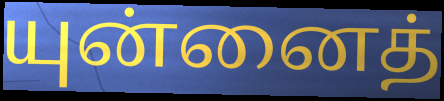
யுன்னைத்